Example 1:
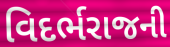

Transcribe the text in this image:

વિદર્ભરાજની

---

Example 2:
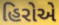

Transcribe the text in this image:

હિરોએ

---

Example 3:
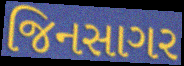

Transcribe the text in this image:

જિનસાગર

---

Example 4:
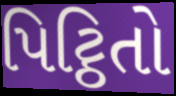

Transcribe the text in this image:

પિટ્ઠિતો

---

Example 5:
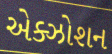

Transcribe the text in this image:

એક્ઝોશન